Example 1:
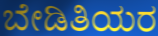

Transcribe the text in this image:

ಬೇಡಿತಿಯರ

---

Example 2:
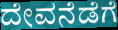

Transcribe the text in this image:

ದೇವನೆಡೆಗೆ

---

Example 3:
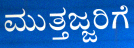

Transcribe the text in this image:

ಮುತ್ತಜ್ಜರಿಗೆ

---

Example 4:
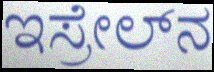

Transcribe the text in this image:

ಇಸ್ರೇಲ್‍ನ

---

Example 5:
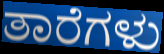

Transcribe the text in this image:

ತಾರೆಗಳು